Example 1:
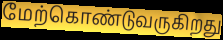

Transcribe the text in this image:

மேற்கொண்டுவருகிறது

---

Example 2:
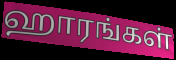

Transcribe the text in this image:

ஹாரங்கள்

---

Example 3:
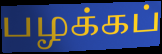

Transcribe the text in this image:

பழக்கப்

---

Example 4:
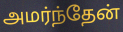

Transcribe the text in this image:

அமர்ந்தேன்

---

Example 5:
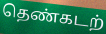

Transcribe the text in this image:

தெண்கடற்